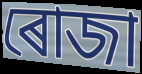
ৰোজা